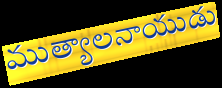
ముత్యాలనాయుడు